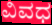
ವಿವಧ